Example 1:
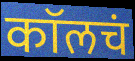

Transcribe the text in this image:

कॉलचं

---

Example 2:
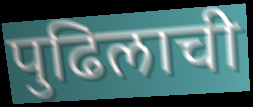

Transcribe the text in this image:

पुढिलाची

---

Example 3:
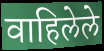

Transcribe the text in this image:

वाहिलेले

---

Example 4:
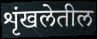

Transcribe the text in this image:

शृंखलेतील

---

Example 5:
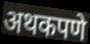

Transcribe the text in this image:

अथकपणे